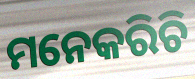
ମନେକରିଚି